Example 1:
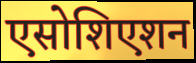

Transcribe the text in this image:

एसोशिएशन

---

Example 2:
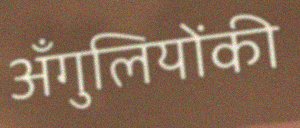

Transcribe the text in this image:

अँगुलियोंकी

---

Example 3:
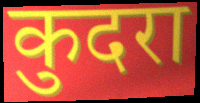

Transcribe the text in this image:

कुदरा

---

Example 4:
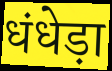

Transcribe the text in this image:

धंधेड़ा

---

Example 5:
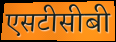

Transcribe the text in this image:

एसटीसीबी